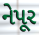
નેપૂર